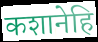
कशानेहि